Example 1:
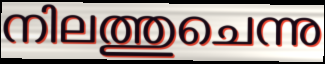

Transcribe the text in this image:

നിലത്തുചെന്നു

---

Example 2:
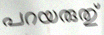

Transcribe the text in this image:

പറയരുതു്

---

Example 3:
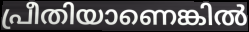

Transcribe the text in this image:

പ്രീതിയാണെങ്കിൽ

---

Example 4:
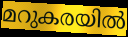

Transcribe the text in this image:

മറുകരയിൽ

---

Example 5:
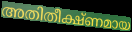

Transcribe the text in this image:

അതിതീക്ഷ്ണമായ